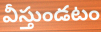
వీస్తుండటం